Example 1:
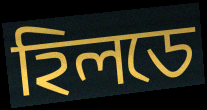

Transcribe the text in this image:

হিলডে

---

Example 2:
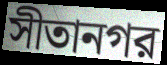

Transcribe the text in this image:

সীতানগর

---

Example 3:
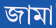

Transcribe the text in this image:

জামা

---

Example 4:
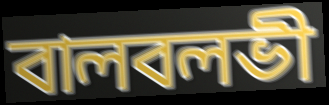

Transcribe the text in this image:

বালবলভী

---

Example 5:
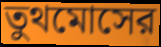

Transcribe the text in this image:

তুথমোসের